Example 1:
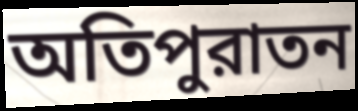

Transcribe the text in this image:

অতিপুরাতন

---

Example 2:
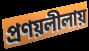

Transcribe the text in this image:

প্রণয়লীলায়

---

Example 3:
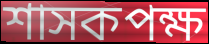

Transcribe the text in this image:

শাসকপক্ষ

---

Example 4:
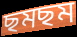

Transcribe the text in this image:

ছমছম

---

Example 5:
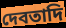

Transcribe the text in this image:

দেবতাদি